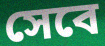
সেবে